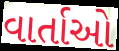
વાર્તાઓ